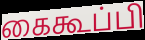
கைகூப்பி